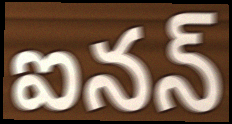
ఐనన్